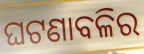
ଘଟଣାବଳିର